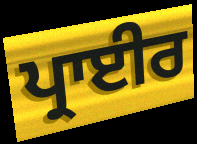
ਪ੍ਰਾਈਰ